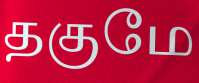
தகுமே